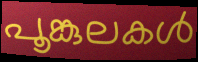
പൂങ്കുലകൾ